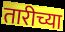
तारीच्या